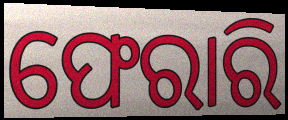
ଫେରାରି